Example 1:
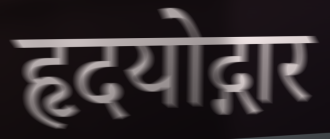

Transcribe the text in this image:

हृदयोद्गार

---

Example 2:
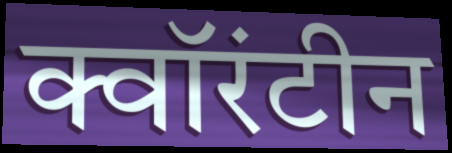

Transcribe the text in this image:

क्वॉरंटीन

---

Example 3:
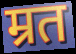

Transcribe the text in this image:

म्रत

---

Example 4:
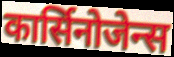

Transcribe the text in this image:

कार्सिनोजेन्स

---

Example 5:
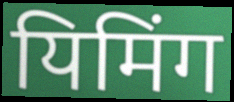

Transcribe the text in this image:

यिमिंग